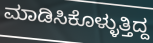
ಮಾಡಿಸಿಕೊಳ್ಳುತ್ತಿದ್ದ